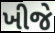
ખીજે